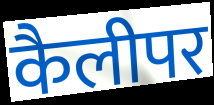
कैलीपर